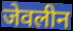
जेवलीन